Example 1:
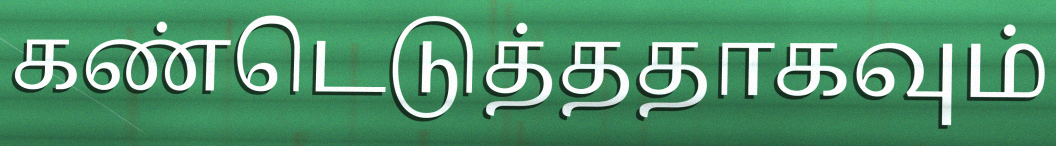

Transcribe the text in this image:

கண்டெடுத்ததாகவும்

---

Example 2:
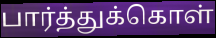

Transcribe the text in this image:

பார்த்துக்கொள்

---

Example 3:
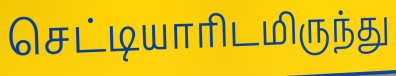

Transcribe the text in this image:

செட்டியாரிடமிருந்து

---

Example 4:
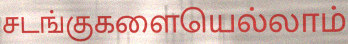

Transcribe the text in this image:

சடங்குகளையெல்லாம்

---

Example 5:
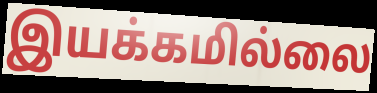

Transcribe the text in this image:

இயக்கமில்லை